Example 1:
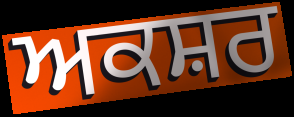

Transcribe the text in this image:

ਅਕਸ਼ਰ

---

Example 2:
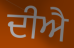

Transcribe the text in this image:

ਦੀਐ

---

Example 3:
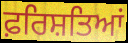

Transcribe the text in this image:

ਫ਼ਰਿਸ਼ਤਿਆਂ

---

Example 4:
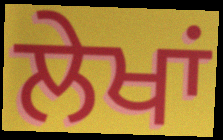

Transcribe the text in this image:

ਲੇਖਾਂ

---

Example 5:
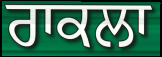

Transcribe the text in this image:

ਰਾਕਲਾ